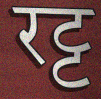
रट्ट